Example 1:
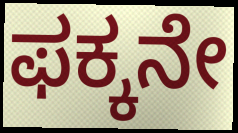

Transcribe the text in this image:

ಫಕ್ಕನೇ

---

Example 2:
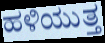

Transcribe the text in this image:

ಹಳಿಯುತ್ತ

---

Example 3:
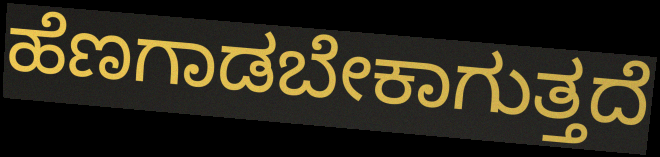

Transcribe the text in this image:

ಹೆಣಗಾಡಬೇಕಾಗುತ್ತದೆ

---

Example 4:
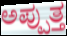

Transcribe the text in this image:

ಅಪ್ಪುತ್ತ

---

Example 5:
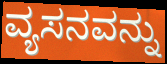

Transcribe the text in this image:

ವ್ಯಸನವನ್ನು